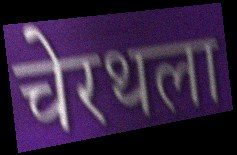
चेरथला